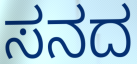
ಸನದ